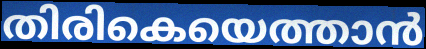
തിരികെയെത്താൻ